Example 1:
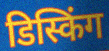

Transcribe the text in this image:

डिस्किंग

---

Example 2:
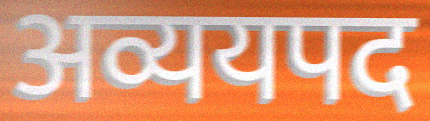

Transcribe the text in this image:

अव्ययपद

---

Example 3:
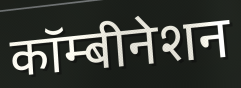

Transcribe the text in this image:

कॉम्बीनेशन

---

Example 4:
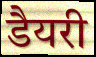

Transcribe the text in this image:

डैयरी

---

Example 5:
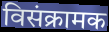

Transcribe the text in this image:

विसंक्रामक